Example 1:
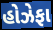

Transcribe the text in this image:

હોઝેફા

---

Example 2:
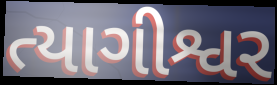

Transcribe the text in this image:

ત્યાગીશ્વર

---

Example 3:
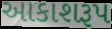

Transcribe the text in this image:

આકાશરૂપ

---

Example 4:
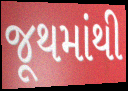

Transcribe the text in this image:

જૂથમાંથી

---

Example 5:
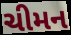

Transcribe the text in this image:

ચીમન